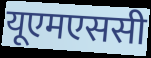
यूएमएससी